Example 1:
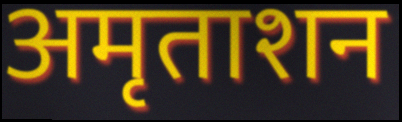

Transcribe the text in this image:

अमृताशन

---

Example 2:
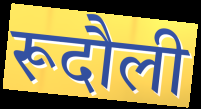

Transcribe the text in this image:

रूदौली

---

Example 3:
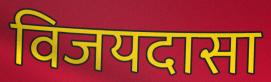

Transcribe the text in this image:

विजयदासा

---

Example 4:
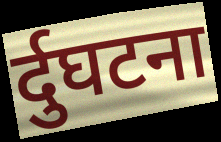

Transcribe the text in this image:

र्दुघटना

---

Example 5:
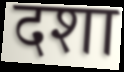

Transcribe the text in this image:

दशा